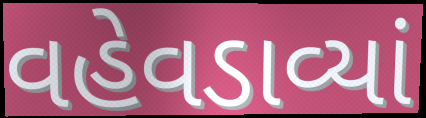
વહેવડાવ્યાં